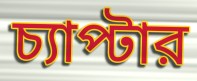
চ্যাপ্টার